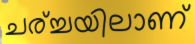
ചര്ച്ചയിലാണ്